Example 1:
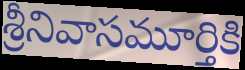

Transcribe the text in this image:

శ్రీనివాసమూర్తికి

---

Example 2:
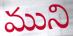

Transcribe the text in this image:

ముని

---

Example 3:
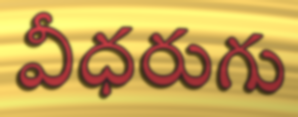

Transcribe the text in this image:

వీధరుగు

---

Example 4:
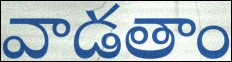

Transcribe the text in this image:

వాడతాం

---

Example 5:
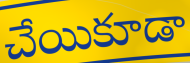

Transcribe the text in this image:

చేయికూడా